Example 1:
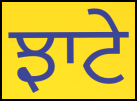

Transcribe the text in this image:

ਝਾਟੇ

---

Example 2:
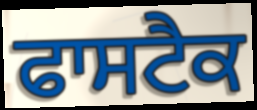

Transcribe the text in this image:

ਫਾਸਟੈਕ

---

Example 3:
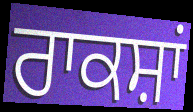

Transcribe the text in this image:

ਰਾਕਸ਼ਾਂ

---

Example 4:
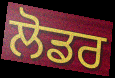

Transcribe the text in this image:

ਲੋਡਰ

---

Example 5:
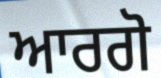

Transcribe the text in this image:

ਆਰਗੋ